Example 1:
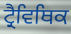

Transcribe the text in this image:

ਟ੍ਰੈਵਿਥਿਕ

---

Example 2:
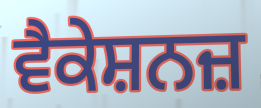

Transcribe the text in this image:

ਵੈਕੇਸ਼ਨਜ਼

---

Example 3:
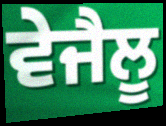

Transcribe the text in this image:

ਵੇਜੈਲੂ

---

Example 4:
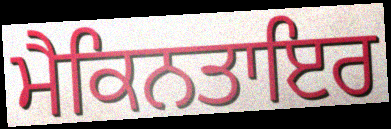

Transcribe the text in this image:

ਮੈਕਿਨਤਾਇਰ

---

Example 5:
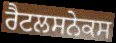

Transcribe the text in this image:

ਰੈਟਲਸਨੇਕਸ